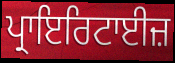
ਪ੍ਰਾਇਰਿਟਾਈਜ਼